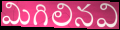
మిగిలినవి